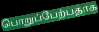
பொறுப்பேற்பதாக